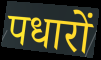
पधारों